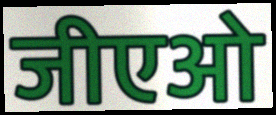
जीएओ